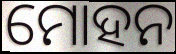
ମୋହନ